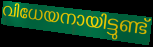
വിധേയനായിട്ടുണ്ട്